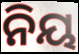
ନିୟ